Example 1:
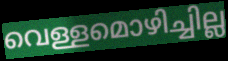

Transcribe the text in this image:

വെള്ളമൊഴിച്ചില്ല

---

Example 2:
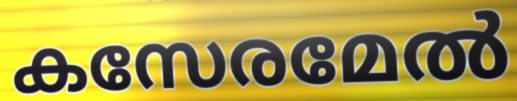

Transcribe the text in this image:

കസേരമേൽ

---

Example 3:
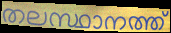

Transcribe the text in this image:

തലസ്ഥാനത്ത്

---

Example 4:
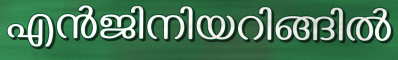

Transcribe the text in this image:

എൻജിനിയറിങ്ങിൽ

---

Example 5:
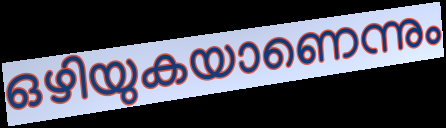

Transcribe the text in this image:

ഒഴിയുകയാണെന്നും